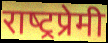
राष्ट्रप्रेमी